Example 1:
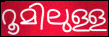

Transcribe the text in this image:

റൂമിലുള്ള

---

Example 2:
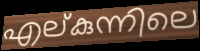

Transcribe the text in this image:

എല്കുന്നിലെ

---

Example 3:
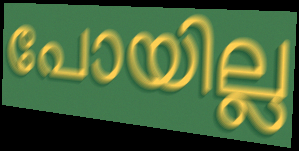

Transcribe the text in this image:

പോയില്ല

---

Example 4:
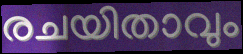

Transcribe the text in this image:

രചയിതാവും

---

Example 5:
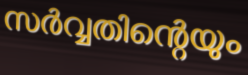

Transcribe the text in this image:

സർവ്വതിന്റെയും